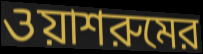
ওয়াশরুমের